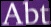
Abt